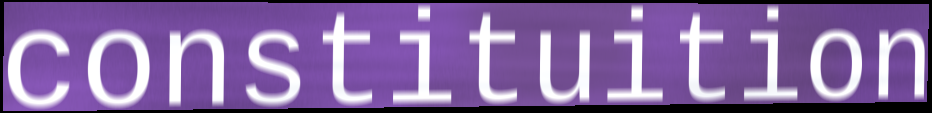
constituition